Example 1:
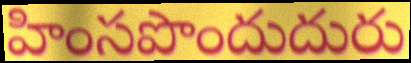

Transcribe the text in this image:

హింసపొందుదురు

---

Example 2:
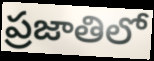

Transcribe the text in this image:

ప్రజాతిలో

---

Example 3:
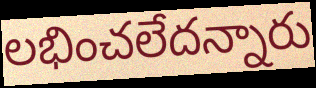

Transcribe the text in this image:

లభించలేదన్నారు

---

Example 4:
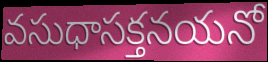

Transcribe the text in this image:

వసుధాసక్తనయనో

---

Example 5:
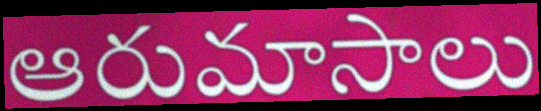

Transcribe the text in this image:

ఆరుమాసాలు